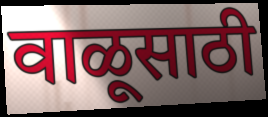
वाळूसाठी